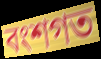
বংশগত